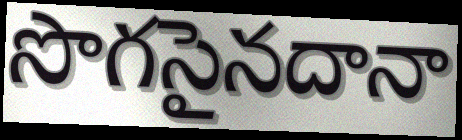
సొగసైనదానా